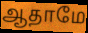
ஆதாமே